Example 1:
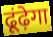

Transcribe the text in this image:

ढूंढ़ेगा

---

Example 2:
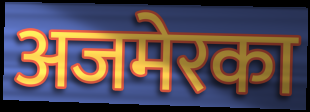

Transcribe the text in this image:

अजमेरका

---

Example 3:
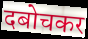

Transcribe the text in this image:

दबोचकर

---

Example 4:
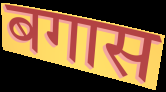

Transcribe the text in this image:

बगास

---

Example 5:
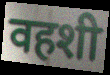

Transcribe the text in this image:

वहशी